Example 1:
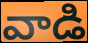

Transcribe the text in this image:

వాడి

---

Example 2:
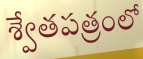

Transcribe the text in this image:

శ్వేతపత్రంలో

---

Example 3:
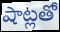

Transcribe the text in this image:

షాట్లతో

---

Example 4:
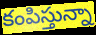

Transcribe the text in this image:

కంపిస్తున్నా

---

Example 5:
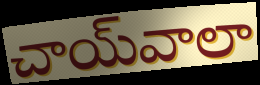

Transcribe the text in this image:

చాయ్‌వాలా